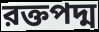
রক্তপদ্ম